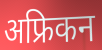
अफ्रिकन